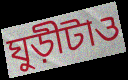
ঘুড়ীটাও